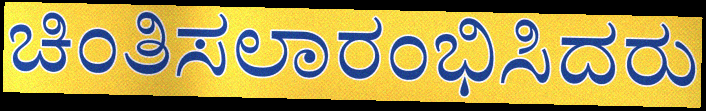
ಚಿಂತಿಸಲಾರಂಭಿಸಿದರು